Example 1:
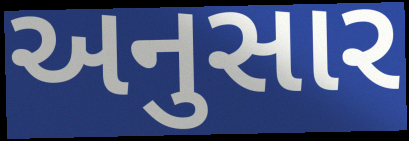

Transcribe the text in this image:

અનુસાર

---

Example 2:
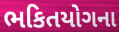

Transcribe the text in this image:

ભકિતયોગના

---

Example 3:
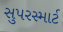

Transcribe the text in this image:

સુપરસ્માર્ટ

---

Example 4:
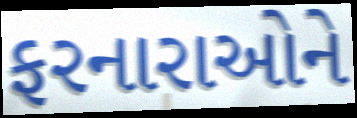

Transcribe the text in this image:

ફરનારાઓને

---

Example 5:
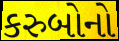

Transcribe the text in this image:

કરુબોનો